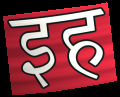
इह